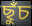
ছুঁচ